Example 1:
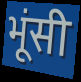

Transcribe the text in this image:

भूंसी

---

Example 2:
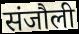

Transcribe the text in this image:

संजौली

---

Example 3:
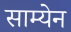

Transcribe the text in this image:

साम्येन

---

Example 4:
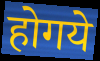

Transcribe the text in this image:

होगये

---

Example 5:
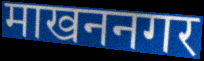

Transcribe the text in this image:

माखननगर